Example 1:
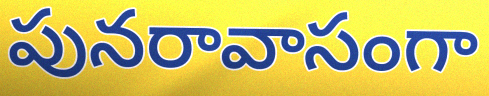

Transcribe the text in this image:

పునరావాసంగా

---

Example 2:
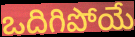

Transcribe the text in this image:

ఒదిగిపోయే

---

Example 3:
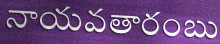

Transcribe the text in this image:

నాయవతారంబు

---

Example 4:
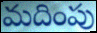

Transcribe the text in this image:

మదింపు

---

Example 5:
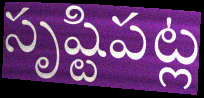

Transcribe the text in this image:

సృష్టిపట్ల